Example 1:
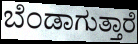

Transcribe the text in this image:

ಬೆಂಡಾಗುತ್ತಾರೆ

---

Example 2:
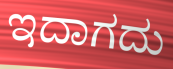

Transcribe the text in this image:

ಇದಾಗದು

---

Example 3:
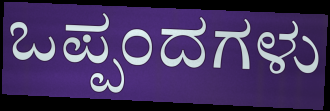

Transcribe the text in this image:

ಒಪ್ಪಂದಗಳು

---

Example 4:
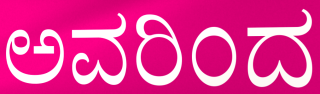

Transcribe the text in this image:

ಅವರಿಂದ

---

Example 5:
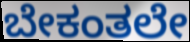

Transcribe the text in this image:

ಬೇಕಂತಲೇ